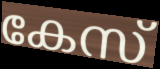
കേസ്